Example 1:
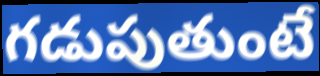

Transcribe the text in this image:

గడుపుతుంటే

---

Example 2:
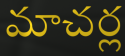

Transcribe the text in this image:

మాచర్ల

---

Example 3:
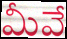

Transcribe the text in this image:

మీవే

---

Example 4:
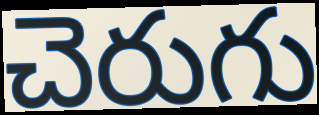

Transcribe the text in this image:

చెరుగు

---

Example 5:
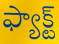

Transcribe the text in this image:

ఫ్యాక్ట్